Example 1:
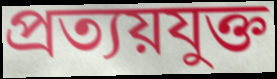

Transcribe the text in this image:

প্রত্যয়যুক্ত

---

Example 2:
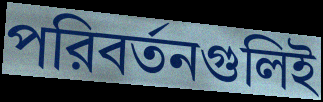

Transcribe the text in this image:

পরিবর্তনগুলিই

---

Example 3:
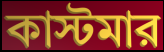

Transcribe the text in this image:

কাস্টমার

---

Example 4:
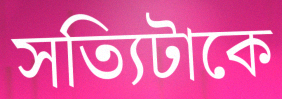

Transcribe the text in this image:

সত্যিটাকে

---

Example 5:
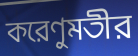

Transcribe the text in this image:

করেণুমতীর